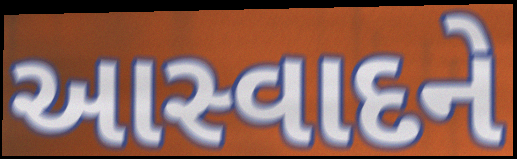
આસ્વાદને